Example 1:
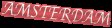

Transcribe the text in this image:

AMSTERDAM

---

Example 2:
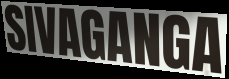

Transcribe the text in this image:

SIVAGANGA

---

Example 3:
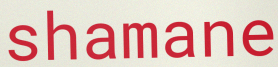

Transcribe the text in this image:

shamane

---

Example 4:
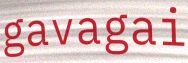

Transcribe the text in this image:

gavagai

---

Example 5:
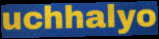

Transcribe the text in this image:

uchhalyo